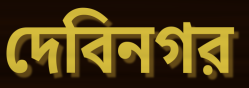
দেবিনগর